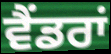
ਵੈਂਡਰਾਂ